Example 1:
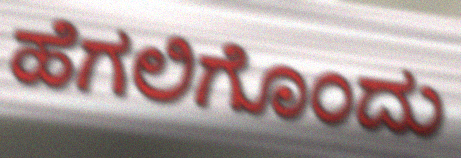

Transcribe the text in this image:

ಹೆಗಲಿಗೊಂದು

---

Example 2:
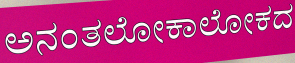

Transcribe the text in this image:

ಅನಂತಲೋಕಾಲೋಕದ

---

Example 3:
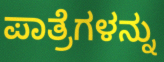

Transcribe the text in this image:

ಪಾತ್ರೆಗಳನ್ನು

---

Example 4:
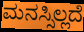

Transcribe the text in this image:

ಮನಸ್ಸಿಲ್ಲದೆ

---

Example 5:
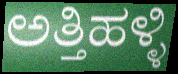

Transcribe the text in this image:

ಅತ್ತಿಹಳ್ಳಿ